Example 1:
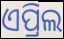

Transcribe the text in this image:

ଏପ୍ରିଲ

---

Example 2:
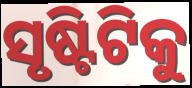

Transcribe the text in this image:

ସୃଷ୍ଟିଟିକୁ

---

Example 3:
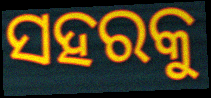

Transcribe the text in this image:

ସହରକୁ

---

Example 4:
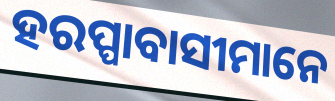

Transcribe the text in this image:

ହରପ୍ପାବାସୀମାନେ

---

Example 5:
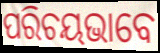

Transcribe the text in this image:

ପରିଚୟଭାବେ